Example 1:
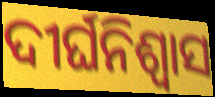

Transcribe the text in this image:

ଦୀର୍ଘନିଶ୍ବାସ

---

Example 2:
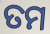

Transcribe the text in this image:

ତମ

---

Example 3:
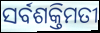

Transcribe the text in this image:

ସର୍ବଶକ୍ତିମତୀ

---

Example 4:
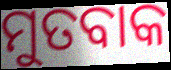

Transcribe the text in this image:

ମୁତବାକ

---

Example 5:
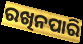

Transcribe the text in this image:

ରଖିନପାରି